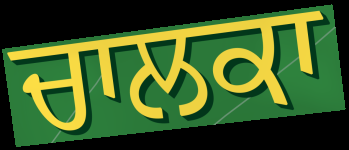
ਚਾਲਕਾ